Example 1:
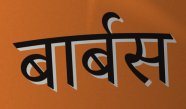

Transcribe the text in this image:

बार्बस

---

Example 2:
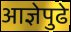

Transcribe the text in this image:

आज्ञेपुढे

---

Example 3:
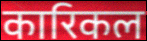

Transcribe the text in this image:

कारिकल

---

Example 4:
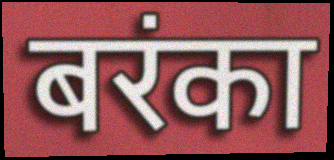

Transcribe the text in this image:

बरंका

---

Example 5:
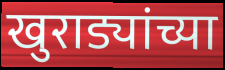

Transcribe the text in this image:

खुराड्यांच्या